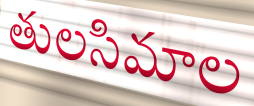
తులసిమాల